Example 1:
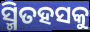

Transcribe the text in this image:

ସ୍ମିତହସକୁ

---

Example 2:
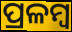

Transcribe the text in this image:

ପ୍ରଳମ୍ବ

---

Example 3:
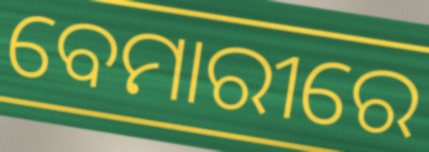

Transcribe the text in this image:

ବେମାରୀରେ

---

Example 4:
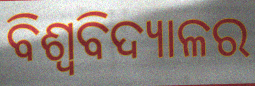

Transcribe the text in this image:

ବିଶ୍ୱବିଦ୍ୟାଳର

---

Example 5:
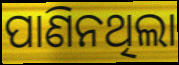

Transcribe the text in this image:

ପାଣିନଥିଲା